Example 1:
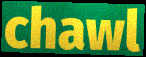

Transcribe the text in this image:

chawl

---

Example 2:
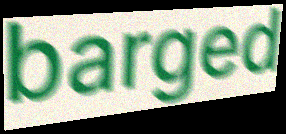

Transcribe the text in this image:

barged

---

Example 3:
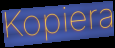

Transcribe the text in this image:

Kopiera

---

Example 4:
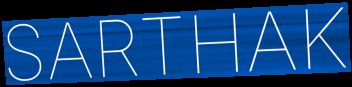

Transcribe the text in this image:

SARTHAK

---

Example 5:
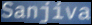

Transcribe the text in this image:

Sanjiva